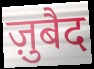
ज़ुबैद